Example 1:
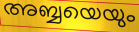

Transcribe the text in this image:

അബ്ബയെയും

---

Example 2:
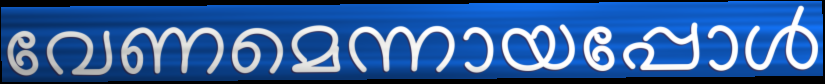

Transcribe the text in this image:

വേണമെന്നായപ്പോൾ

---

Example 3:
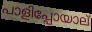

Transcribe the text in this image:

പാളിപ്പോയാല്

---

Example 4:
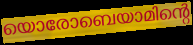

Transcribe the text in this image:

യൊരോബെയാമിന്റെ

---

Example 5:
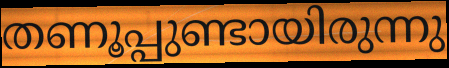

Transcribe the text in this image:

തണൂപ്പുണ്ടായിരുന്നു